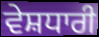
ਵੇਸ਼ਧਾਰੀ